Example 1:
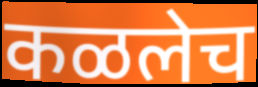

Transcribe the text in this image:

कळलेच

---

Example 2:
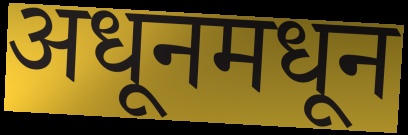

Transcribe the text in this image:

अधूनमधून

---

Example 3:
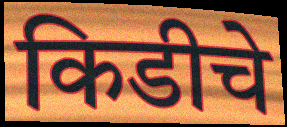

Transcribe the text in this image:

किडीचे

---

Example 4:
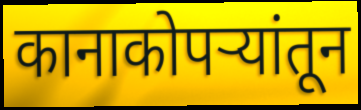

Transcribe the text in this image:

कानाकोपर्‍यांतून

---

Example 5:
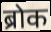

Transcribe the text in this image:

ब्रोक